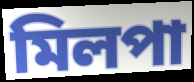
মিলপা